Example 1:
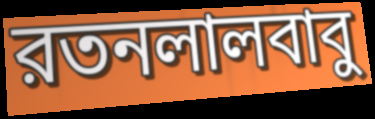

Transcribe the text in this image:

রতনলালবাবু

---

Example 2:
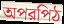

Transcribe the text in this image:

অপরপিঠ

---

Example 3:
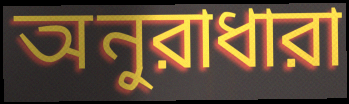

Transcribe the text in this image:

অনুরাধারা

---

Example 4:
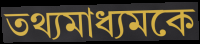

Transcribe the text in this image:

তথ্যমাধ্যমকে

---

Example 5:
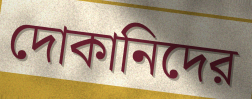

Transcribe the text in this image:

দোকানিদের